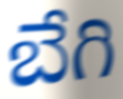
బేగి